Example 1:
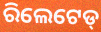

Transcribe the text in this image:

ରିଲେଟେଡ୍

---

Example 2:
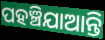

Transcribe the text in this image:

ପହଞ୍ଚିଯାଆନ୍ତି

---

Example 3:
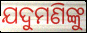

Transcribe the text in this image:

ଯଦୁମଣିଙ୍କୁ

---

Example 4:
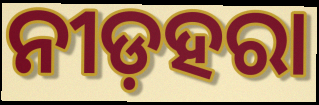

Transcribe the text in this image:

ନୀଡ଼ହରା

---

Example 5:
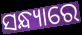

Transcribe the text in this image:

ସନ୍ଧ୍ୟାରେ